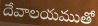
దేవాలయముతో